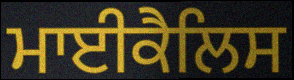
ਮਾਈਕੈਲਿਸ